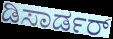
ಡಿಸಾರ್ಡರ್